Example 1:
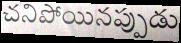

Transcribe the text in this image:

చనిపోయినప్పుడు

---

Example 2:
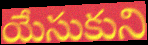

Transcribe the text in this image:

యేసుకుని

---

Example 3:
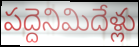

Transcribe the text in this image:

పద్దెనిమిదేళ్లు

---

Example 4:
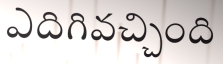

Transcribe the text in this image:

ఎదిగివచ్చింది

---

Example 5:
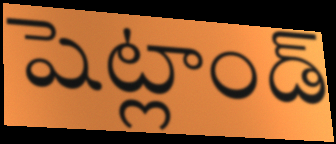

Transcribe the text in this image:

షెట్లాండ్